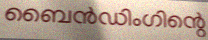
ബൈൻഡിംഗിന്റെ